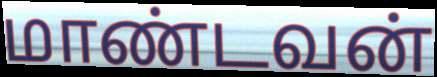
மாண்டவன்